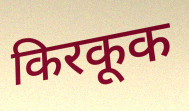
किरकूक